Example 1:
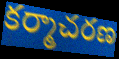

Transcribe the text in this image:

కర్మాచరణ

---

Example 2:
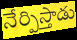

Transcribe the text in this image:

నేర్పిస్తాడు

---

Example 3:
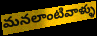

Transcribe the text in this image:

మనలాంటివాళ్ళు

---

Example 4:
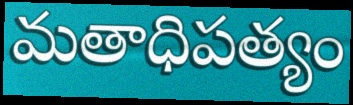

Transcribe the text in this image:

మతాధిపత్యం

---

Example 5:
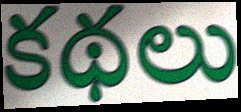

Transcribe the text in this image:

కథలు